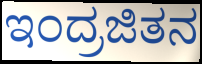
ಇಂದ್ರಜಿತನ